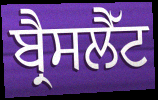
ਬ੍ਰੈਸਲੈੱਟ